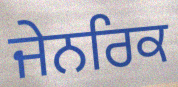
ਜੇਨਰਿਕ